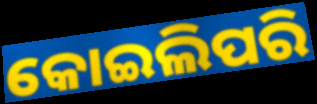
କୋଇଲିପରି